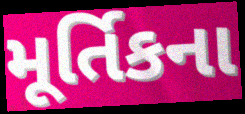
મૂર્તિકના